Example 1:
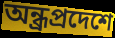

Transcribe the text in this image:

অন্ধ্রপ্রদেশে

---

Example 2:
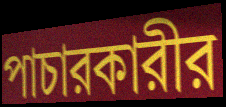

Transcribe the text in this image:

পাচারকারীর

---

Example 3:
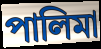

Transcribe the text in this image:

পালিমা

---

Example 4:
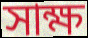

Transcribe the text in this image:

সাক্ষ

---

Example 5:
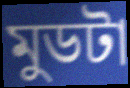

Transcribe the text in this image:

মুডটা